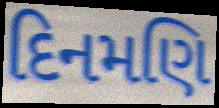
દિનમણિ